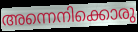
അന്നെനിക്കൊരു